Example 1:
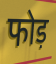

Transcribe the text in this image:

फोड़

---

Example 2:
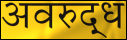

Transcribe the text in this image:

अवरुद्ध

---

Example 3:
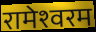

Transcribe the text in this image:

रामेश्वरम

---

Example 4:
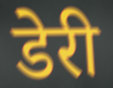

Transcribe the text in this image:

डेरी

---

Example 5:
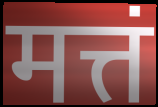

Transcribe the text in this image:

मत्तं